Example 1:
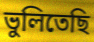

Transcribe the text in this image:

ভুলিতেছি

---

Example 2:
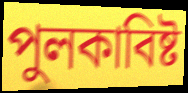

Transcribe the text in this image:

পুলকাবিষ্ট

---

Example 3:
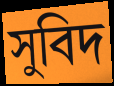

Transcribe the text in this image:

সুবিদ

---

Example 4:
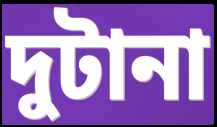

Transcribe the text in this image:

দুটানা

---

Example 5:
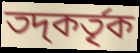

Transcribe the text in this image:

তদ্‌কর্তৃক